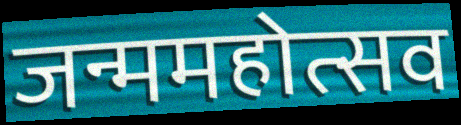
जन्ममहोत्सव